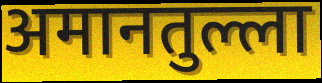
अमानतुल्ला